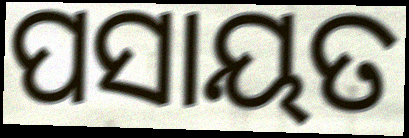
ପସାୟତ